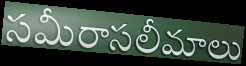
సమీరాసలీమాలు